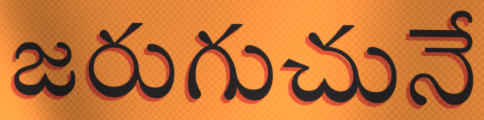
జరుగుచునే